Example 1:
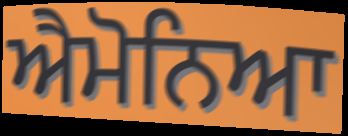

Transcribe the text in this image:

ਐਮੋਨਿਆ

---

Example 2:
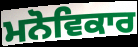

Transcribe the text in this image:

ਮਨੋਵਿਕਾਰ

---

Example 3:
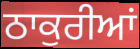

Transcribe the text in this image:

ਠਾਕੁਰੀਆਂ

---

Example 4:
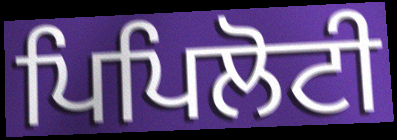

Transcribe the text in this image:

ਪਿਪਿਲੋਟੀ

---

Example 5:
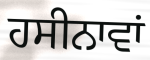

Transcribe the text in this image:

ਹਸੀਨਾਵਾਂ